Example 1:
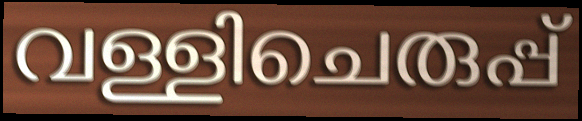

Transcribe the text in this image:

വള്ളിചെരുപ്പ്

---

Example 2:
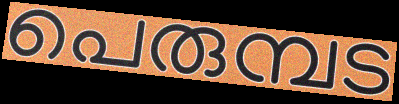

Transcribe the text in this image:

പെരുമ്പട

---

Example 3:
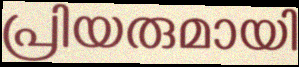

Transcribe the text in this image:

പ്രിയരുമായി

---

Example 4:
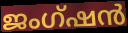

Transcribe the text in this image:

ജംഗ്ഷൻ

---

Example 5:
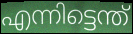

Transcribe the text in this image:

എന്നിട്ടെന്ത്